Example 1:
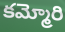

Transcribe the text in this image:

కమ్మోరి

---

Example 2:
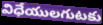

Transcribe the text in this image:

విధేయులగుటకు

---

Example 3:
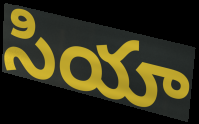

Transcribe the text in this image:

సియా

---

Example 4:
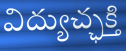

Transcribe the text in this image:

విద్యుచ్ఛక్తి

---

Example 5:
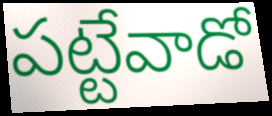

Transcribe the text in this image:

పట్టేవాడో